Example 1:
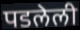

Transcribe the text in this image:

पडलेली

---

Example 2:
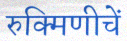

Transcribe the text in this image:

रुक्मिणीचें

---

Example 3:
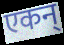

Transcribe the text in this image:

एकन्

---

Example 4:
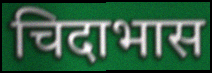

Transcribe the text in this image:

चिदाभास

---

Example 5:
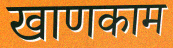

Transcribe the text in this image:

खाणकाम